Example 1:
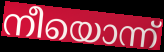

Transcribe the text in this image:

നീയൊന്ന്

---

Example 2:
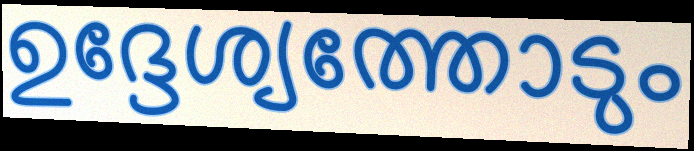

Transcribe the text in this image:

ഉദ്ദേശ്യത്തോടും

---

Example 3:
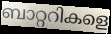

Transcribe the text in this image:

ബാറ്ററികളെ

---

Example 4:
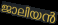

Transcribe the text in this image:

ജാലിയൻ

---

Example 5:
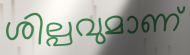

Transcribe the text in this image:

ശില്പവുമാണ്